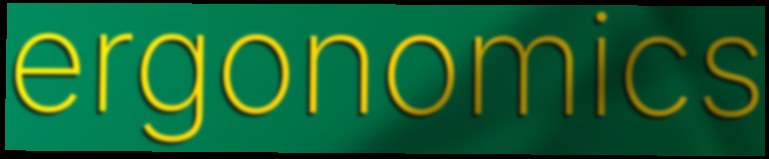
ergonomics